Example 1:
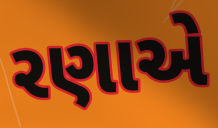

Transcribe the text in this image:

રણાએ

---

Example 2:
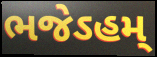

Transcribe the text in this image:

ભજેઽહમ્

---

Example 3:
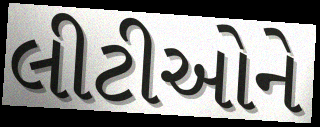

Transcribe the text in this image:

લીટીઓને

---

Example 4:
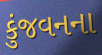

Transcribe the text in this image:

કુંજવનના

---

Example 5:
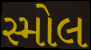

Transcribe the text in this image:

સ્મોલ